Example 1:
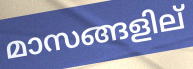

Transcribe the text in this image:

മാസങ്ങളില്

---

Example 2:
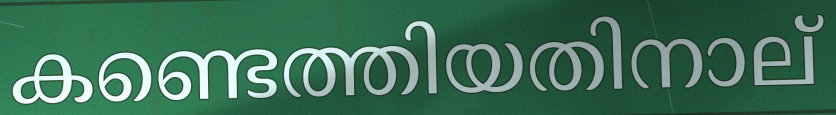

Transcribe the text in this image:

കണ്ടെത്തിയതിനാല്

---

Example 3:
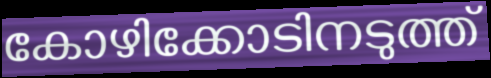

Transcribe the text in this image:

കോഴിക്കോടിനടുത്ത്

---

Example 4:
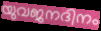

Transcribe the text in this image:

യുവജനദിനം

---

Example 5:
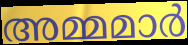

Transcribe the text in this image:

അമ്മമാർ